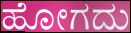
ಹೋಗದು